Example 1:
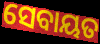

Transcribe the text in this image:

ସେବାୟତ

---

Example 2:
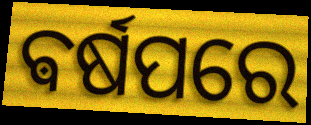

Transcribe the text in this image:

ଵର୍ଷପରେ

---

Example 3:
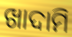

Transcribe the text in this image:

ଖାଦାମି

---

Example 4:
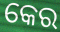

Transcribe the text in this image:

କେର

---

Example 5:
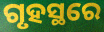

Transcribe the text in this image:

ଗୃହସ୍ଥରେ